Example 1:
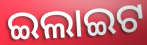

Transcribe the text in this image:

ଇଲାଇଟ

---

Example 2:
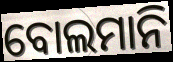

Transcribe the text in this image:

ବୋଲମାନି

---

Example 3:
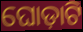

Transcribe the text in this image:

ଘୋଡ଼ାଟି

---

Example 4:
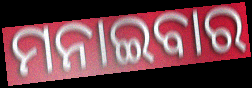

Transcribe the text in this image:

ମନାଇବାର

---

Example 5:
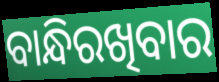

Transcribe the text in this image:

ବାନ୍ଧିରଖିବାର